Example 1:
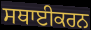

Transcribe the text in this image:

ਸਥਾਈਕਰਨ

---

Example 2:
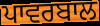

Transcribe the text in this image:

ਪਾਵਰਬਾਲ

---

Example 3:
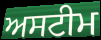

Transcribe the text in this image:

ਅਸਟੀਮ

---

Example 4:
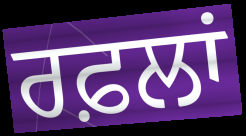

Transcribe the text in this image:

ਰਫ਼ਲਾਂ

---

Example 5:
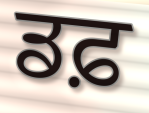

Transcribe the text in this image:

ਡਫ਼